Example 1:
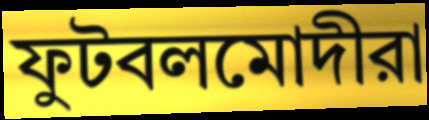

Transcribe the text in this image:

ফুটবলমোদীরা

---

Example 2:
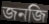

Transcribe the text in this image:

জনজি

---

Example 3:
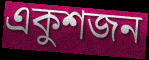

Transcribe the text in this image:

একুশজন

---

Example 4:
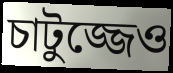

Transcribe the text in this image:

চাটুজ্জেও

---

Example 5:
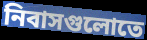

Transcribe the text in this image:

নিবাসগুলোতে